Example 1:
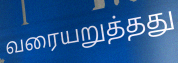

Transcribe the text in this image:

வரையறுத்தது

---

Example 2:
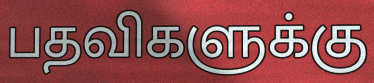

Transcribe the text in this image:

பதவிகளுக்கு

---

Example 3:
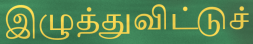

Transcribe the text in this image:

இழுத்துவிட்டுச்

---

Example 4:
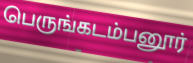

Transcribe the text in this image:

பெருங்கடம்பனூர்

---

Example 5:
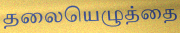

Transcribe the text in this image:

தலையெழுத்தை